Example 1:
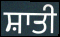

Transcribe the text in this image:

ਸ਼ਾਤੀ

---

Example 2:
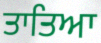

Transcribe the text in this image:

ਤਾਤਿਆ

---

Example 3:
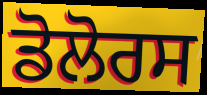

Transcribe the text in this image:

ਡੋਲੋਰਸ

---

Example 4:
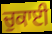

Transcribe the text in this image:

ਚੁਕਾਈ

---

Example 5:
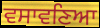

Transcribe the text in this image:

ਵਸਾਵਣਿਆ